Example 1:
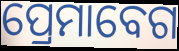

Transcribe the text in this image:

ପ୍ରେମାବେଗ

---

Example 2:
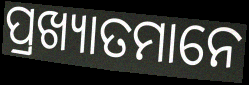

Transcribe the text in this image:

ପ୍ରଖ୍ୟାତମାନେ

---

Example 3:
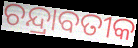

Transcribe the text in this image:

ଚନ୍ଦ୍ରାବତୀକ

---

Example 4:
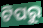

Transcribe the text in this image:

ଟିପରୁ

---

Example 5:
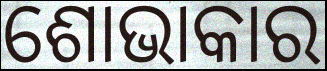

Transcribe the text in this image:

ଶୋଭାକାର